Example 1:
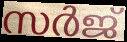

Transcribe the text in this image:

സർജ്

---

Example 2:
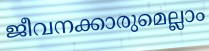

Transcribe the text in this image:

ജീവനക്കാരുമെല്ലാം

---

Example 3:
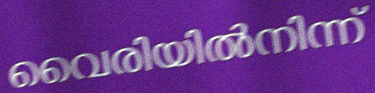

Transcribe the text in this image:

വൈരിയിൽനിന്ന്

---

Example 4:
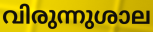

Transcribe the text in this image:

വിരുന്നുശാല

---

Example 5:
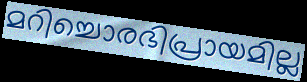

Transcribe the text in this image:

മറിച്ചൊരഭിപ്രായമില്ല